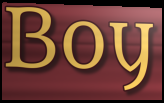
Boy